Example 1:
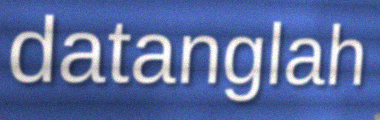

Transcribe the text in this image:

datanglah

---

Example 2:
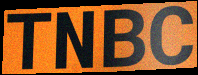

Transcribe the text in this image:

TNBC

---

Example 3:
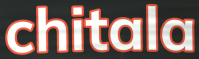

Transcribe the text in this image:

chitala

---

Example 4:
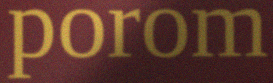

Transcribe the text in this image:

porom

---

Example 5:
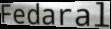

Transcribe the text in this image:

Fedaral